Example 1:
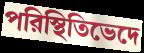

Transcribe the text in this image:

পরিস্থিতিভেদে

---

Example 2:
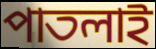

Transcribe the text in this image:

পাতলাই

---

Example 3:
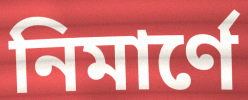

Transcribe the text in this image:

নিমার্ণে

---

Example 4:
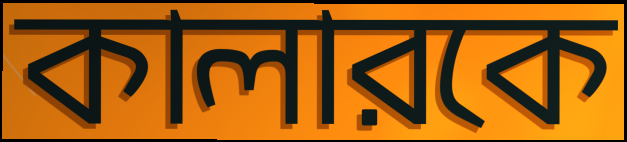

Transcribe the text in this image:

কালারকে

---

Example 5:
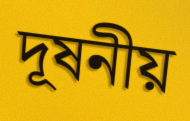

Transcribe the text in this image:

দূষনীয়